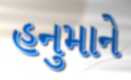
હનુમાને